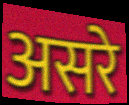
असरे